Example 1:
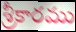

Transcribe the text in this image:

శ్రీకారము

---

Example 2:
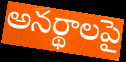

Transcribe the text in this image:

అనర్థాలపై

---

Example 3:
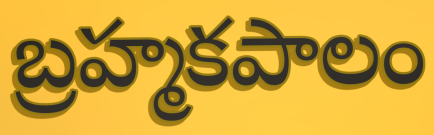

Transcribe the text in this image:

బ్రహ్మకపాలం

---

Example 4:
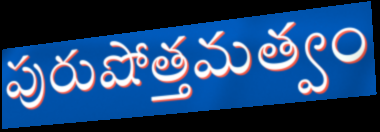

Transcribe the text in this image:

పురుషోత్తమత్వం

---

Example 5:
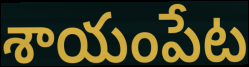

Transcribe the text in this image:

శాయంపేట